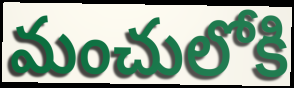
మంచులోకి